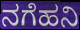
ನಗೆಹನಿ